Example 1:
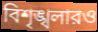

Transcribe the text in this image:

বিশৃঙ্খলারও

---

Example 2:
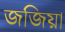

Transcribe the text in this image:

জজিয়া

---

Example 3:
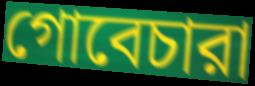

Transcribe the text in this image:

গোবেচারা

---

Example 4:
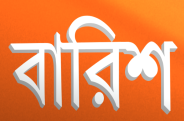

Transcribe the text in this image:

বারিশ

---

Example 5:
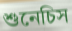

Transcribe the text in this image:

শুনেচিস